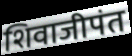
शिवाजीपंत